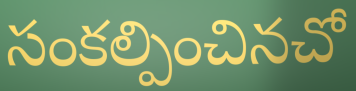
సంకల్పించినచో